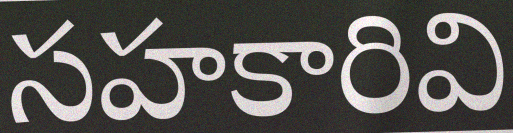
సహకారివి